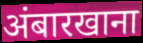
अंबारखाना